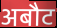
अबौट